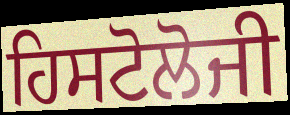
ਹਿਸਟੋਲੋਜੀ